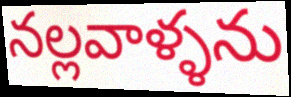
నల్లవాళ్ళను